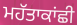
ਮਹੱਤਾਕਾਂਛੀ